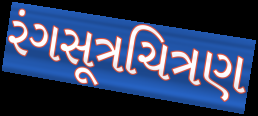
રંગસૂત્રચિત્રણ